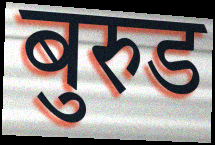
बुरुड